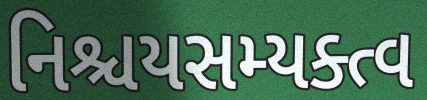
નિશ્ચયસમ્યક્ત્વ